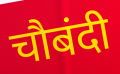
चौबंदी